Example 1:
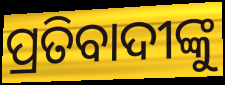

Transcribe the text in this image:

ପ୍ରତିବାଦୀଙ୍କୁ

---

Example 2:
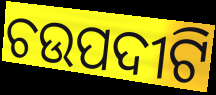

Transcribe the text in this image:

ଚଉପଦୀଟି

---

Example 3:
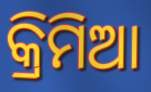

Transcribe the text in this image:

କ୍ରିମିଆ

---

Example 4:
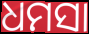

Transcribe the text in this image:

ଧମସା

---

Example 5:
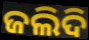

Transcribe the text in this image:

ଜଲିଦି